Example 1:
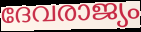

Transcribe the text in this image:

ദേവരാജ്യം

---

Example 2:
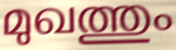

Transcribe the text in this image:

മുഖത്തും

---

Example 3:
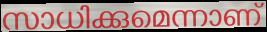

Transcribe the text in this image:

സാധിക്കുമെന്നാണ്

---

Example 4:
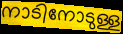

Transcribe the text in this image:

നാടിനോടുള്ള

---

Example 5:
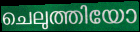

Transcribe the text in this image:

ചെലുത്തിയോ